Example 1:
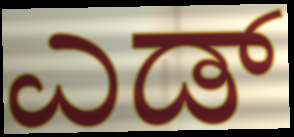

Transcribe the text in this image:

ಎಡ್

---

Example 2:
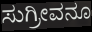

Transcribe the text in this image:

ಸುಗ್ರೀವನೂ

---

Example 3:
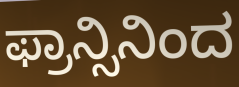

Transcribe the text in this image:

ಫ್ರಾನ್ಸಿನಿಂದ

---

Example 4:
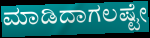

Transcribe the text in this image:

ಮಾಡಿದಾಗಲಷ್ಟೇ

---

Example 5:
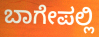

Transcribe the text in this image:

ಬಾಗೇಪಲ್ಲಿ